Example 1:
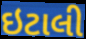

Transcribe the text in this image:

ઇટાલી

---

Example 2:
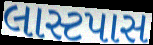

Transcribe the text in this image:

લાસ્ટપાસ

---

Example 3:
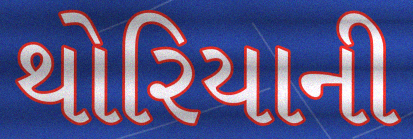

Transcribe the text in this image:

થોરિયાની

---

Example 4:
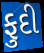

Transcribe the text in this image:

ફુદી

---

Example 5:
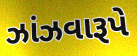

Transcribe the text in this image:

ઝાંઝવારૂપે